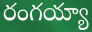
రంగయ్యా